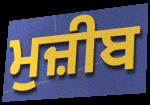
ਮੁਜ਼ੀਬ